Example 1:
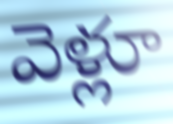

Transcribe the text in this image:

వెళ్లూ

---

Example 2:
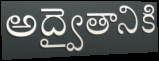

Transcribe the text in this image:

అద్వైతానికి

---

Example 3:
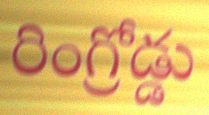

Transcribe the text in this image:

రింగ్రోడ్డు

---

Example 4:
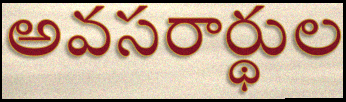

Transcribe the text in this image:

అవసరార్థుల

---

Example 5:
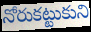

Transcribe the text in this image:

నోరుకట్టుకుని